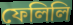
ফেলিলি